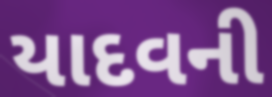
યાદવની